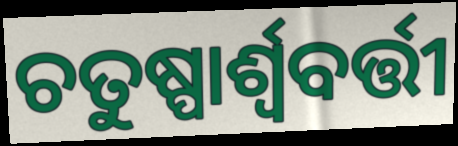
ଚତୁଷ୍ପାର୍ଶ୍ୱବର୍ତ୍ତୀ